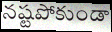
నష్టపోకుండా